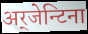
अर्जेन्टिना